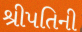
શ્રીપતિની